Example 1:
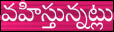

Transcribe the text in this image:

వహిస్తున్నట్లు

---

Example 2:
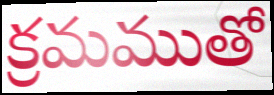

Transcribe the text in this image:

క్రమముతో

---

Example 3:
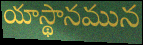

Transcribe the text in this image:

యాస్థానమున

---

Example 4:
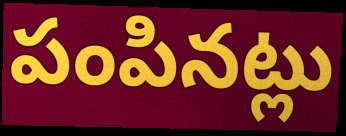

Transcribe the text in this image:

పంపినట్లు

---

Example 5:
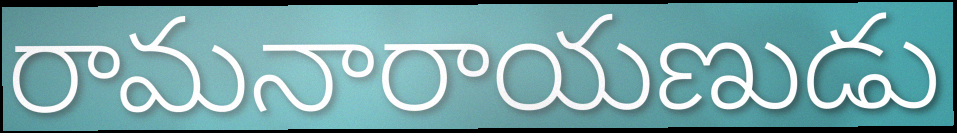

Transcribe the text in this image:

రామనారాయణుడు